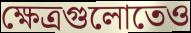
ক্ষেত্রগুলোতেও